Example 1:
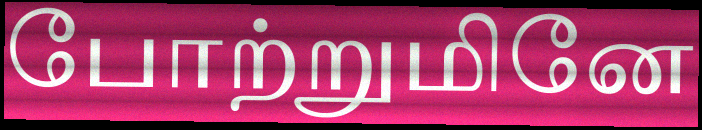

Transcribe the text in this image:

போற்றுமினே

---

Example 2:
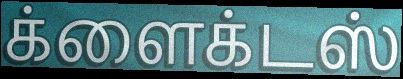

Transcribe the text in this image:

க்ளைக்டஸ்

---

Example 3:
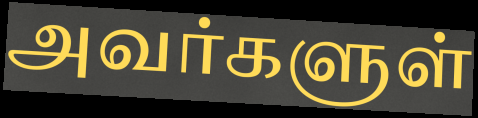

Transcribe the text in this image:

அவர்களுள்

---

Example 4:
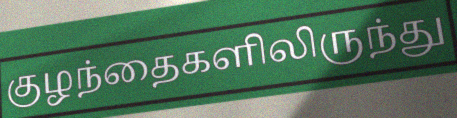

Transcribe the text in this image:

குழந்தைகளிலிருந்து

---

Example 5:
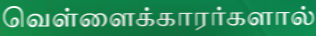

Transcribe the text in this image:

வெள்ளைக்காரர்களால்